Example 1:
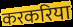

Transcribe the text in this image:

करकरिया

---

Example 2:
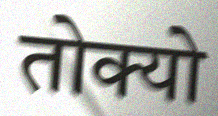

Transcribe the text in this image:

तोक्यो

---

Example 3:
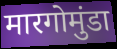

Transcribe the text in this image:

मारगोमुंडा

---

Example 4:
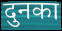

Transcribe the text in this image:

दुनका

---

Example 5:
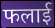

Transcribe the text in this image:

फलाई